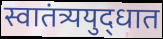
स्वातंत्र्ययुद्धात